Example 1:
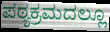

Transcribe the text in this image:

ಪಠ್ಯಕ್ರಮದಲ್ಲೂ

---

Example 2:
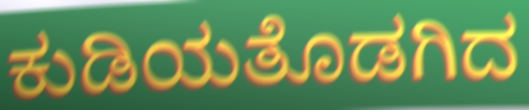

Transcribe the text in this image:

ಕುಡಿಯತೊಡಗಿದ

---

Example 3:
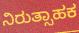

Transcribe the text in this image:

ನಿರುತ್ಸಾಹಕ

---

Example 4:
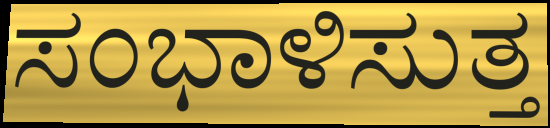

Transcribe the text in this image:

ಸಂಭಾಳಿಸುತ್ತ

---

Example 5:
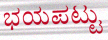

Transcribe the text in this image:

ಭಯಪಟ್ಟು